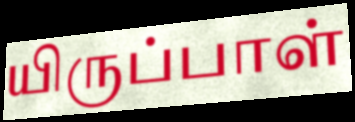
யிருப்பாள்